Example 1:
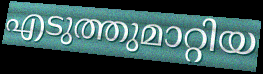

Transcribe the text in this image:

എടുത്തുമാറ്റിയ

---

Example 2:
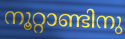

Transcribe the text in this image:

നൂറ്റാണ്ടിനു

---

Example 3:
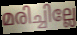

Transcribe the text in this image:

മരിച്ചില്ലേ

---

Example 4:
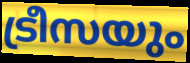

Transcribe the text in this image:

ട്രീസയും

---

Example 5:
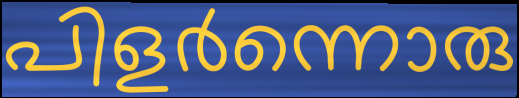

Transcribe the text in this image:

പിളർന്നൊരു